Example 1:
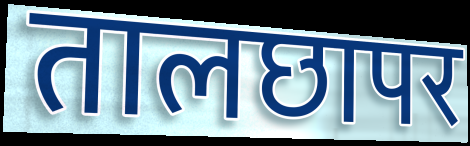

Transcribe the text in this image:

तालछापर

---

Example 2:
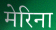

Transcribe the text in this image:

मेरिना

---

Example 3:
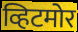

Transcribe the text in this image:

व्हिटमोर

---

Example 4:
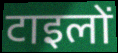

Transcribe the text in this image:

टाइलों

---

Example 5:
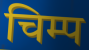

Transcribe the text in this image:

चिम्प